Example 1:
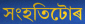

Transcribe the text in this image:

সংহতিটোৰ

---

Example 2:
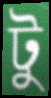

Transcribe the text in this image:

টু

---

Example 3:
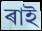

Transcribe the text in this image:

ৰাই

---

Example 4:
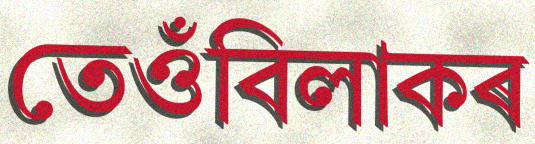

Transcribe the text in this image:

তেওঁবিলাকৰ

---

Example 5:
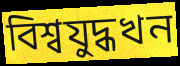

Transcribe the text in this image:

বিশ্বযুদ্ধখন